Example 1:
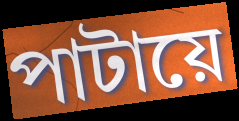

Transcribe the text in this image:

পাটায়ে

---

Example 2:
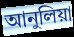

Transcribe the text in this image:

আনুলিয়া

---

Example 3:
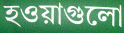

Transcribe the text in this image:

হওয়াগুলো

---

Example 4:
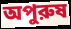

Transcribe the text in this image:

অপুরুষ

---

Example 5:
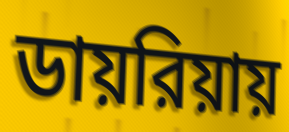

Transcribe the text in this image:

ডায়রিয়ায়